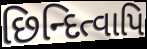
છિન્દિત્વાપિ